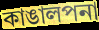
কাঙালপনা